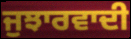
ਜੁਝਾਰਵਾਦੀ